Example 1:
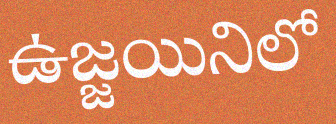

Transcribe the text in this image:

ఉజ్జయినిలో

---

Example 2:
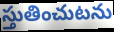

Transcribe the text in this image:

స్తుతించుటను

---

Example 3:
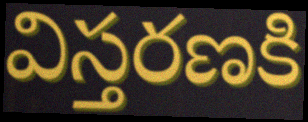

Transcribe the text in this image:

విస్తరణకి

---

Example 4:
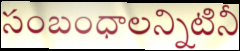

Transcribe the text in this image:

సంబంధాలన్నిటినీ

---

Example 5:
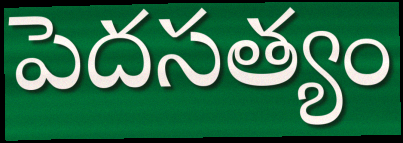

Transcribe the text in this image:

పెదసత్యం